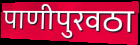
पाणीपुरवठा